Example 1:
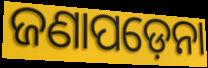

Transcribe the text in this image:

ଜଣାପଡ଼େନା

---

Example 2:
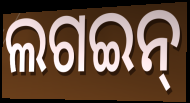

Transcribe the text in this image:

ଲଗଇନ୍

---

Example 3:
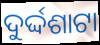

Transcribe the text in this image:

ଦୁର୍ଦ୍ଦଶାଟା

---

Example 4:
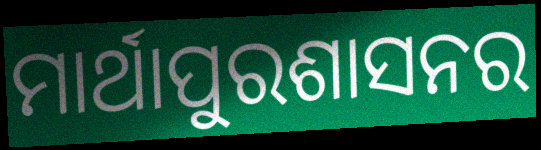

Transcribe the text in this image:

ମାର୍ଥାପୁରଶାସନର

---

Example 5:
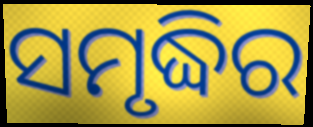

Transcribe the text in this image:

ସମୃଦ୍ଧିର